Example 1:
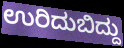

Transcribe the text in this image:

ಉರಿದುಬಿದ್ದು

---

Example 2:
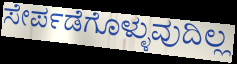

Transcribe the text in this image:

ಸೇರ್ಪಡೆಗೊಳ್ಳುವುದಿಲ್ಲ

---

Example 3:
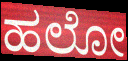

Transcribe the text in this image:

ಹಲೋ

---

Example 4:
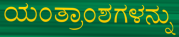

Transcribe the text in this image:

ಯಂತ್ರಾಂಶಗಳನ್ನು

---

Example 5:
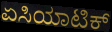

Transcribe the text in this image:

ಏಸಿಯಾಟಿಕ್